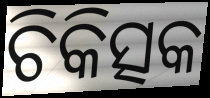
ଚିକିତ୍ସକ